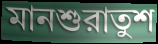
মানশুরাতুশ